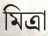
মিত্রা